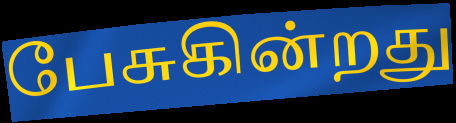
பேசுகின்றது